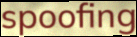
spoofing